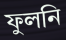
ফুলনি